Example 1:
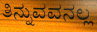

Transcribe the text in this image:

ತಿನ್ನುವವನಲ್ಲ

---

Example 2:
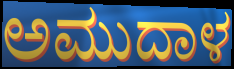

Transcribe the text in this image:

ಅಮುದಾಳ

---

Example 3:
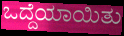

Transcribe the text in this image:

ಒದ್ದೆಯಾಯಿತು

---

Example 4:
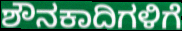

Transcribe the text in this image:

ಶೌನಕಾದಿಗಳಿಗೆ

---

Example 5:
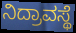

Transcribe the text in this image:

ನಿದ್ರಾವಸ್ಥೆ